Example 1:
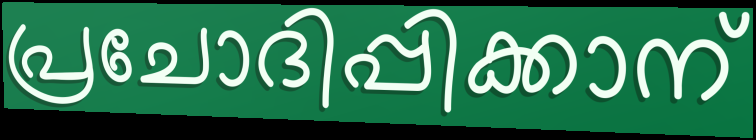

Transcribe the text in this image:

പ്രചോദിപ്പിക്കാന്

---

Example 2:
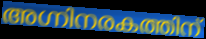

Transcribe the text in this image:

അഗ്നിനരകത്തിന്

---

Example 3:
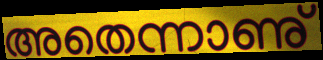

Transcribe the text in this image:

അതെന്നാണു്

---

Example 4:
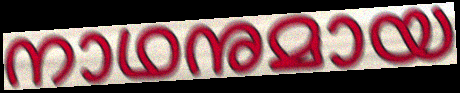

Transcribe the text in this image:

നാഥനുമായ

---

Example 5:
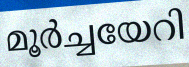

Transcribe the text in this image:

മൂർച്ചയേറി